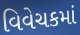
વિવેચકમાં